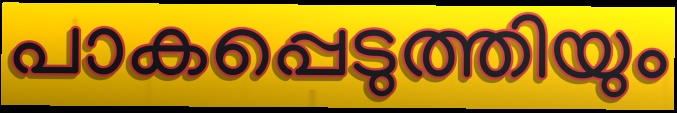
പാകപ്പെടുത്തിയും